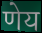
णेय